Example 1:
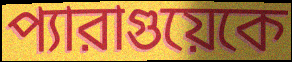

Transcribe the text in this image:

প্যারাগুয়েকে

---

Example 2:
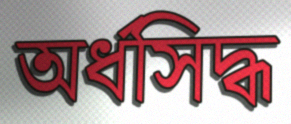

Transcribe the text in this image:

অর্ধসিদ্ধ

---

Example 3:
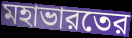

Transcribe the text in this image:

মহাভারতের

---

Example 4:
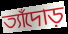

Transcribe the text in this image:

ত্যাঁদোড়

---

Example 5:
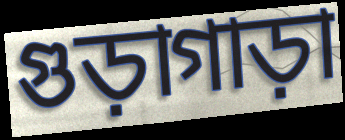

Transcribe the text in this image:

গুড়াগাড়া